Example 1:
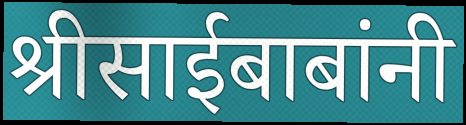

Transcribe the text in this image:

श्रीसाईबाबांनी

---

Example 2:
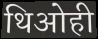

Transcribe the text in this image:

थिओही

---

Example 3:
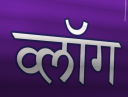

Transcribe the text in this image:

व्लॉग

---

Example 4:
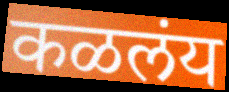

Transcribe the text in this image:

कळलंय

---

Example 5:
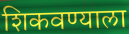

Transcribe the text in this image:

शिकवण्याला